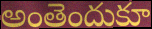
అంతెందుకూ